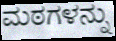
ಮಠಗಳನ್ನು